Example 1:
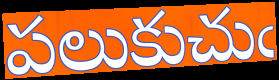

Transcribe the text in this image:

పలుకుచుఁ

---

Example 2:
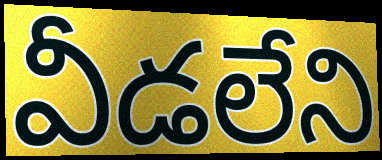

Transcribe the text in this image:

వీడలేని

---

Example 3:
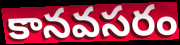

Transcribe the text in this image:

కానవసరం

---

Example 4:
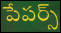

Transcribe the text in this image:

పేపర్స్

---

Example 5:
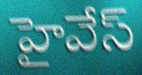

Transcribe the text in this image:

హైవేస్